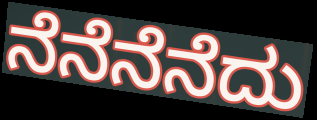
ನೆನೆನೆನೆದು